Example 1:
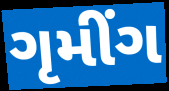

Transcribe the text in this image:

ગૃમીંગ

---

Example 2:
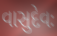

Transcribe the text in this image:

વાસુદેવઃ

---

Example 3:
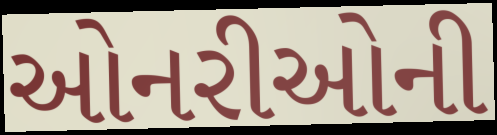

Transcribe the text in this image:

ઓનરીઓની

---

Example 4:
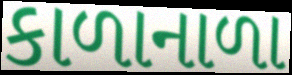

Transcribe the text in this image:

કાળાનાળા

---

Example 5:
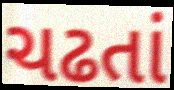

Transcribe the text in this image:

ચઢતાં